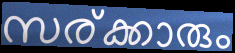
സര്ക്കാരും